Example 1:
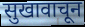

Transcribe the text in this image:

सुखावाचून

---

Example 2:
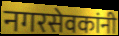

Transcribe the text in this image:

नगरसेवकांनी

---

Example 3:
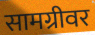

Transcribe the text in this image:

सामग्रीवर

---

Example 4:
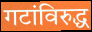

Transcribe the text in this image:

गटांविरुद्ध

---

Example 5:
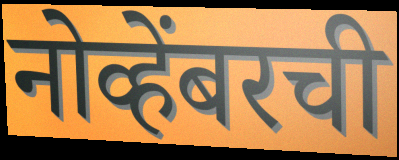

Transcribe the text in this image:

नोव्हेंबरची